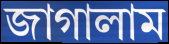
জাগালাম